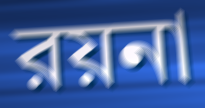
রয়না